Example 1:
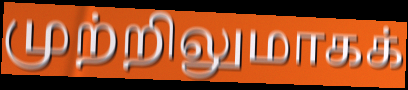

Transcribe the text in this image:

முற்றிலுமாகக்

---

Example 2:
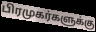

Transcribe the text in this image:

பிரமுகர்களுக்கு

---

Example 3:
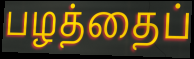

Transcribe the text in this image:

பழத்தைப்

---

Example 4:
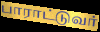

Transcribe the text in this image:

பாராட்டுவர்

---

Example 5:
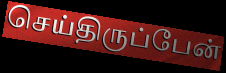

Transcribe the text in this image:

செய்திருப்பேன்